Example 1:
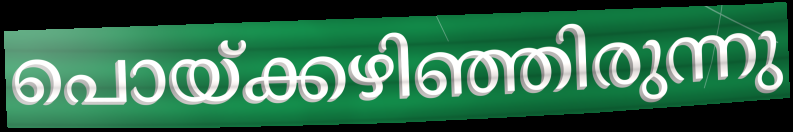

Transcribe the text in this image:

പൊയ്ക്കഴിഞ്ഞിരുന്നു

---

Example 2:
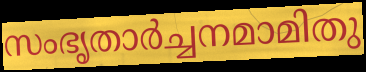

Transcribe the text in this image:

സംഭൃതാർച്ചനമാമിതു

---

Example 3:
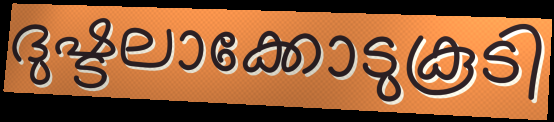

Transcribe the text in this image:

ദുഷ്ടലാക്കോടുകൂടി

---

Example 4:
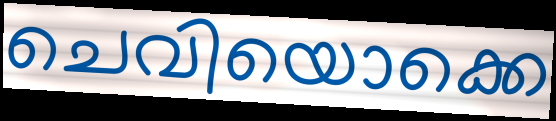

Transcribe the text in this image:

ചെവിയൊക്കെ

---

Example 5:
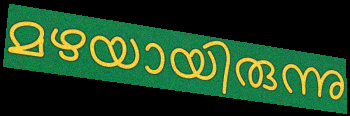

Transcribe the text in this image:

മഴയായിരുന്നു